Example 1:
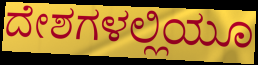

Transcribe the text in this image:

ದೇಶಗಳಲ್ಲಿಯೂ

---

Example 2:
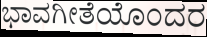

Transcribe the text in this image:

ಭಾವಗೀತೆಯೊಂದರ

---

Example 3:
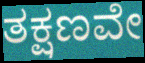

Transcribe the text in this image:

ತಕ್ಷಣವೇ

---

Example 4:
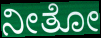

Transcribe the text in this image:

ನೀತೋ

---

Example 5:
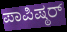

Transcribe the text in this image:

ಪಾಪಿಷ್ಠರ್